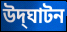
উদ্‌ঘাটন